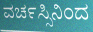
ವರ್ಚಸ್ಸಿನಿಂದ